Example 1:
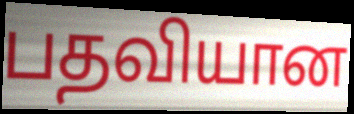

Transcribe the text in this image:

பதவியான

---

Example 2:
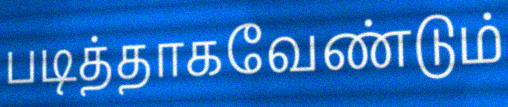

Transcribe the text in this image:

படித்தாகவேண்டும்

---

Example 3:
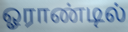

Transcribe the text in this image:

ஓராண்டில்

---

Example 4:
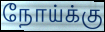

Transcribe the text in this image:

நோய்க்கு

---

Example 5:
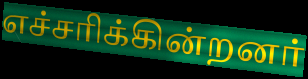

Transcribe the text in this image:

எச்சரிக்கின்றனர்